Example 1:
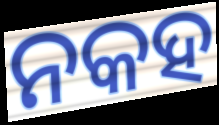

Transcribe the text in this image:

ନକହ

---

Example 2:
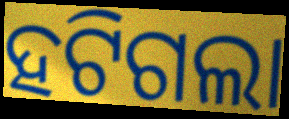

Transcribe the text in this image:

ହଟିଗଲା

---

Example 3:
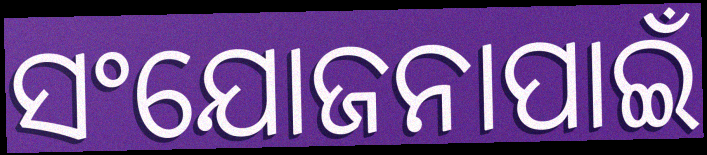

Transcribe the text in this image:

ସଂଯୋଜନାପାଇଁ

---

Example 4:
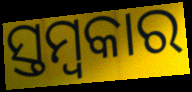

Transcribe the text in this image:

ସ୍ତମ୍ବକାର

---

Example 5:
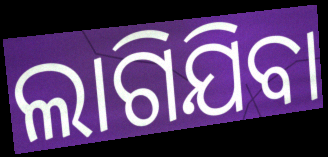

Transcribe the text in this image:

ଲାଗିଯିବା